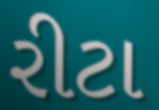
રીટા